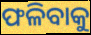
ଫଳିବାକୁ